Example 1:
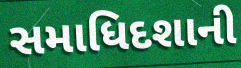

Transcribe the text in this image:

સમાધિદશાની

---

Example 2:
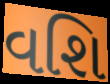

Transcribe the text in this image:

વશિ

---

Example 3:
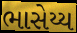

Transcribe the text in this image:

ભાસેય્ય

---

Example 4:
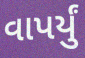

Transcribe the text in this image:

વાપર્યું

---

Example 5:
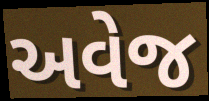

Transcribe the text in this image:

અવેજ